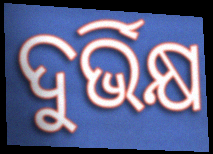
ଦୁର୍ଭିକ୍ଷ